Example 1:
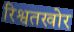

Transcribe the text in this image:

रिश्वतखोर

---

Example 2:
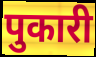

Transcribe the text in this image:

पुकारी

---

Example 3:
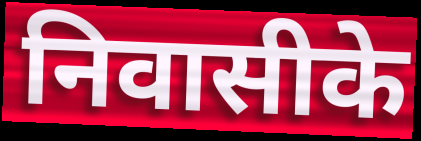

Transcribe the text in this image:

निवासीके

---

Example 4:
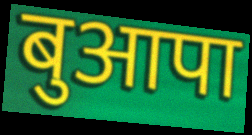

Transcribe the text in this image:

बुआपा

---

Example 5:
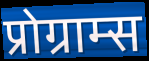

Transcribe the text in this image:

प्रोग्राम्स